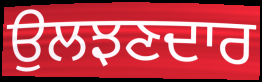
ਉਲਝਣਦਾਰ